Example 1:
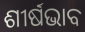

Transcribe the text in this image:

ଶୀର୍ଷଭାବ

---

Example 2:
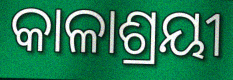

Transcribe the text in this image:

କାଳାଶ୍ରୟୀ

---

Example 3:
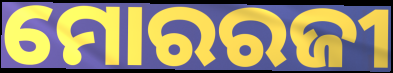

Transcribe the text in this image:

ମୋରରଜୀ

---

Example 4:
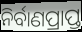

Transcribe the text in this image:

ନିର୍ବାଣପ୍ରାପ୍ତ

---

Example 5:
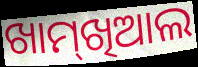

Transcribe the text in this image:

ଖାମ୍‌ଖିଆଲ